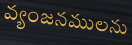
వ్యంజనములను